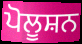
ਪੋਲੂਸ਼ਨ